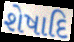
શેષાદિ